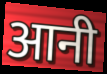
आनी